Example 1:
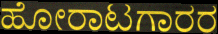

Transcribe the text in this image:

ಹೋರಾಟಗಾರರ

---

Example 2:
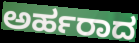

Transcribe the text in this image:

ಅರ್ಹರಾದ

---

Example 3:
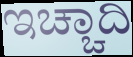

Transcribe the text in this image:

ಇಚ್ಚಾದಿ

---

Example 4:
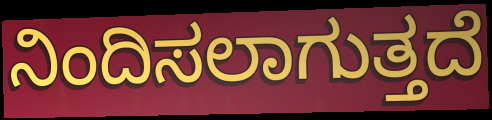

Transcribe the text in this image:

ನಿಂದಿಸಲಾಗುತ್ತದೆ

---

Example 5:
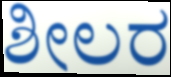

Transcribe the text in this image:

ಶೀಲರ